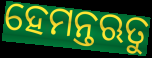
ହେମନ୍ତଋତୁ